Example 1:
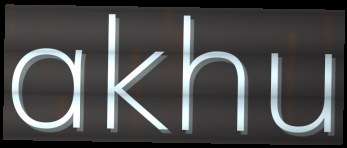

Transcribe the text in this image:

akhu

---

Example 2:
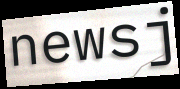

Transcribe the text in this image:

newsj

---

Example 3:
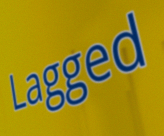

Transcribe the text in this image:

Lagged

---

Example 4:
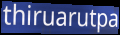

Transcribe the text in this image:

thiruarutpa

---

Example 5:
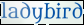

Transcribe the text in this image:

ladybird